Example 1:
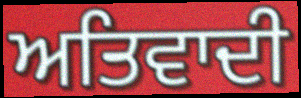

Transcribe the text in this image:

ਅਤਿਵਾਦੀ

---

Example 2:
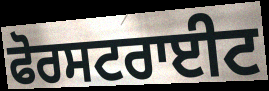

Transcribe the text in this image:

ਫੋਰਸਟਰਾਈਟ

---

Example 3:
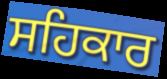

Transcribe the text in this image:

ਸਹਿਕਾਰ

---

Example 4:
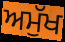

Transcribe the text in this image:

ਅਮੁੱਖ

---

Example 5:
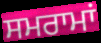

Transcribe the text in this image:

ਸਮਰਾਮਾਂ